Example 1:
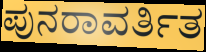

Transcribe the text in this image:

ಪುನರಾವರ್ತಿತ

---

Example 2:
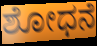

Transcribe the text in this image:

ಶೋಧನೆ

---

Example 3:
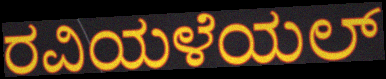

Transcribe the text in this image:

ರವಿಯಳೆಯಲ್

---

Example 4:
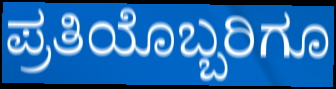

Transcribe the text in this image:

ಪ್ರತಿಯೊಬ್ಬರಿಗೂ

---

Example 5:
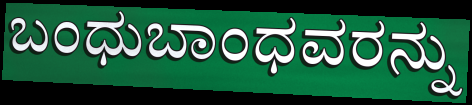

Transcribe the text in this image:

ಬಂಧುಬಾಂಧವರನ್ನು